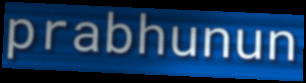
prabhunun